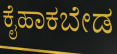
ಕೈಹಾಕಬೇಡ